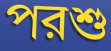
পরশু